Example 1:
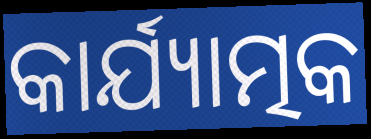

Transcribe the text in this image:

କାର୍ଯ୍ୟାତ୍ମକ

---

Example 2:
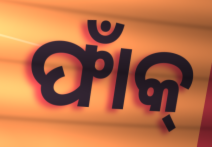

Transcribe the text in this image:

ଫାଁକ୍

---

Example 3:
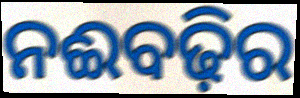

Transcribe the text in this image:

ନଈବଢ଼ିର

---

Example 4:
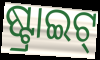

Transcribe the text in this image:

ଷ୍ଟ୍ରାଇଟ୍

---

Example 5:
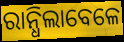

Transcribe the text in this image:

ରାନ୍ଧିଲାବେଳେ